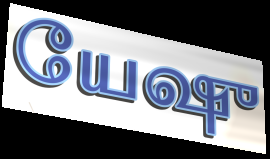
யேஷு